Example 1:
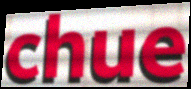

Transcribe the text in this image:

chue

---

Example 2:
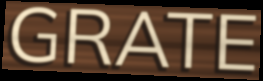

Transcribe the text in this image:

GRATE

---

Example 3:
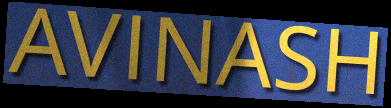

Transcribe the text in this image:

AVINASH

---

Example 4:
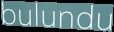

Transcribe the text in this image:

bulundu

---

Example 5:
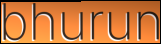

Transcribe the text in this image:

bhurun